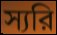
স্যরি